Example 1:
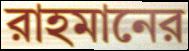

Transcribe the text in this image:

রাহমানের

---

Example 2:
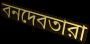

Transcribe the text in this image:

বনদেবতারা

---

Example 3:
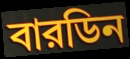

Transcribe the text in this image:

বারডিন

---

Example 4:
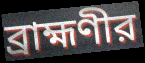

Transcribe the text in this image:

ব্রাহ্মণীর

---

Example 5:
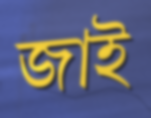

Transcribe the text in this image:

জাই